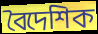
বৈদেশিক